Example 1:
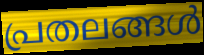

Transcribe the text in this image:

പ്രതലങ്ങൾ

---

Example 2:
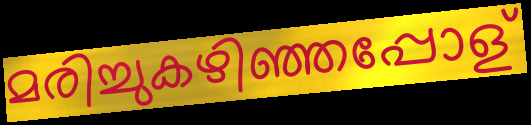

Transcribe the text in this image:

മരിച്ചുകഴിഞ്ഞപ്പോള്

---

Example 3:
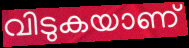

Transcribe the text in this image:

വിടുകയാണ്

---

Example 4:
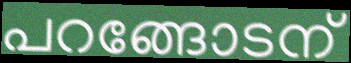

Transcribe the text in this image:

പറങ്ങോടന്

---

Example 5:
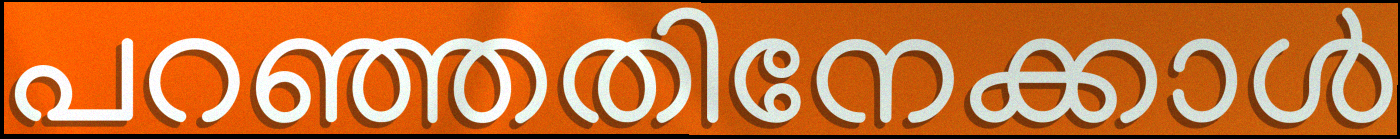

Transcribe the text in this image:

പറഞ്ഞതിനേക്കാൾ